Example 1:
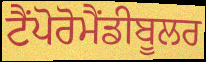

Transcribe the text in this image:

ਟੈਂਪੋਰੋਮੈਂਡੀਬੂਲਰ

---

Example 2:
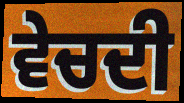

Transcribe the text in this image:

ਵੇਚਦੀ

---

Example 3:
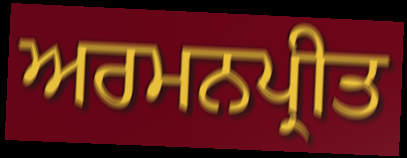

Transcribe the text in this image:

ਅਰਮਨਪ੍ਰੀਤ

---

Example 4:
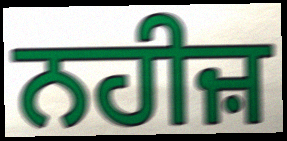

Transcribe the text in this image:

ਨਹੀਜ਼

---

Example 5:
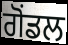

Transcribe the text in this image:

ਗੋਂਡਲ